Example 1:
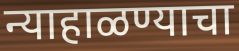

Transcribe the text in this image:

न्याहाळण्याचा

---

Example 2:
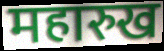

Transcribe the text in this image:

महारुख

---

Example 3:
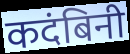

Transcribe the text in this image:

कदंबिनी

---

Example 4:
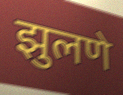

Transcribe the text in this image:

झुलणे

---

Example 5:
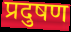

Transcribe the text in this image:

प्रदुषण